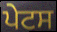
ਪੇਟਸ